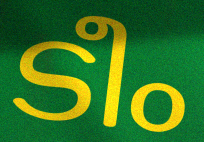
ടീം